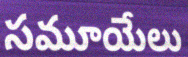
సమూయేలు